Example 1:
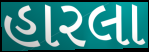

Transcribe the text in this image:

હારલા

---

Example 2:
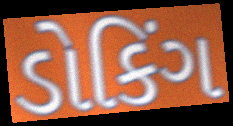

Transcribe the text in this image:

ડોકિંગ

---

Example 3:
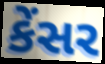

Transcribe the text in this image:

કેંસર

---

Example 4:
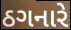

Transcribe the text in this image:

ઠગનારે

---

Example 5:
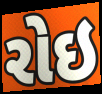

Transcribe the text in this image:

રોઇ